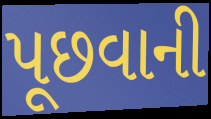
પૂછવાની